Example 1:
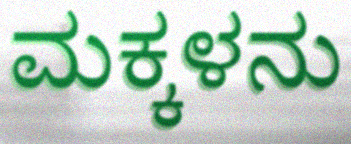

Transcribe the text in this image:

ಮಕ್ಕಳನು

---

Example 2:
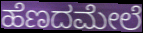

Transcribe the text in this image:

ಹೆಣದಮೇಲೆ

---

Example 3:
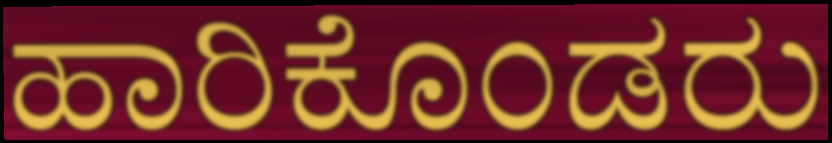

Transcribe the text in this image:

ಹಾರಿಕೊಂಡರು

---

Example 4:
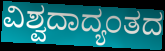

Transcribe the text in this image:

ವಿಶ್ವದಾದ್ಯಂತದ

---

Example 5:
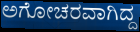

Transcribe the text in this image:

ಅಗೋಚರವಾಗಿದ್ದ